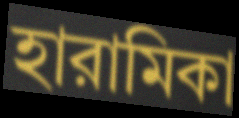
হারামিকা